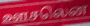
ஊசலென